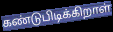
கண்டுபிடிக்கிறாள்